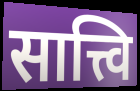
सात्त्वि